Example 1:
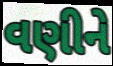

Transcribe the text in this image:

વણીને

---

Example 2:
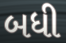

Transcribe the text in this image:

બધી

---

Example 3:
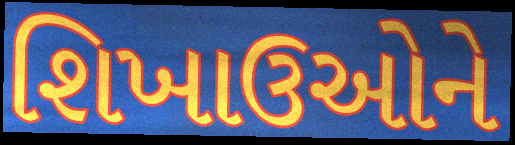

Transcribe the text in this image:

શિખાઉઓને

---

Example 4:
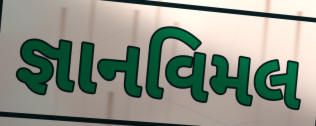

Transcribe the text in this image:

જ્ઞાનવિમલ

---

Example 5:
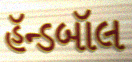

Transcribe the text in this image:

હૅન્ડબૉલ